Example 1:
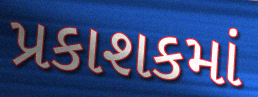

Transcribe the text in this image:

પ્રકાશકમાં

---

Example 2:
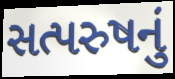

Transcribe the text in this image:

સત્પરુષનું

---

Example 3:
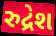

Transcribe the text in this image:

રુદ્રેશ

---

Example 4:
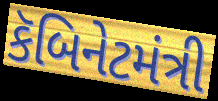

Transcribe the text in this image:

કૅબિનેટમંત્રી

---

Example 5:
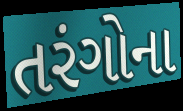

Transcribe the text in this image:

તરંગોના